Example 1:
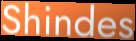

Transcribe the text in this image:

Shindes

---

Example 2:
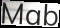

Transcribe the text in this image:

Mab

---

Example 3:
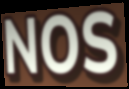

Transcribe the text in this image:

NOS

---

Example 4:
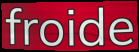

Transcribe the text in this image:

froide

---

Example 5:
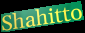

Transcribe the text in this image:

Shahitto